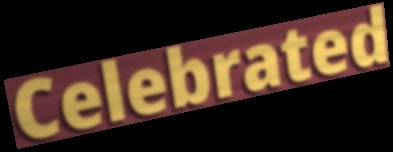
Celebrated